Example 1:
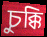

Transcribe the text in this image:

চুক্কি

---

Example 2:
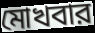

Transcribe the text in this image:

মোখবার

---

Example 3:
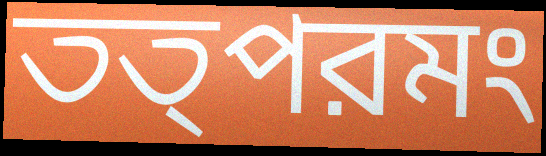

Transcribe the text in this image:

তত্পরমং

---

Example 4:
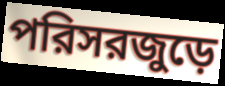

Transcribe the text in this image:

পরিসরজুড়ে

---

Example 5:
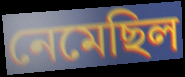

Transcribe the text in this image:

নেমেছিল